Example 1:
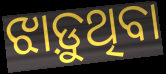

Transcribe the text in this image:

ଝାଡ଼ୁଥିବା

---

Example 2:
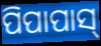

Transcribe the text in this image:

ପିପାପାସ୍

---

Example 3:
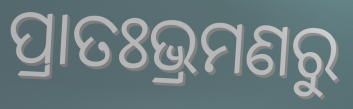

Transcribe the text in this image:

ପ୍ରାତଃଭ୍ରମଣରୁ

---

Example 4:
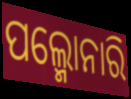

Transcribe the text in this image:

ପଲ୍ମୋନାରି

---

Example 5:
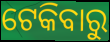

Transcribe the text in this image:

ଟେକିବାରୁ